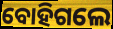
ବୋହିଗଲେ